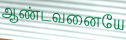
ஆண்டவனையே